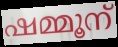
ഷമ്മൂന്